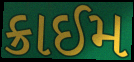
ક્રાઈમ